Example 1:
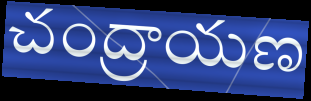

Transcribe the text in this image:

చంద్రాయణ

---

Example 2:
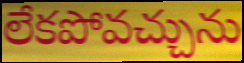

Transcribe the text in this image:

లేకపోవచ్చును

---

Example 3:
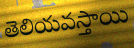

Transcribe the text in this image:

తెలియవస్తాయి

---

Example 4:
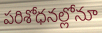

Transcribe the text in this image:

పరిశోధనల్లోనూ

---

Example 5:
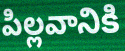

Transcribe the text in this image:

పిల్లవానికి